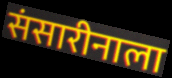
संसारीनाला